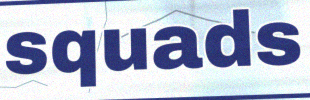
squads